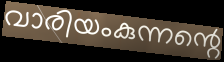
വാരിയംകുന്നന്റെ